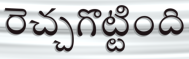
రెచ్చగొట్టింది